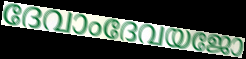
ദേവാംദേവയജോ